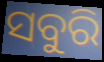
ସବୁରି